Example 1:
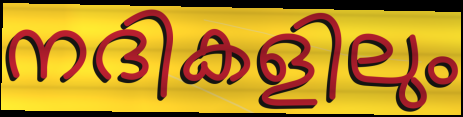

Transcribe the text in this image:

നദികളിലും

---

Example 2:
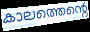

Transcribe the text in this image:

കാലത്തെന്റെ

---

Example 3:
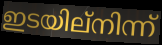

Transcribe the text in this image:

ഇടയില്നിന്ന്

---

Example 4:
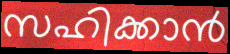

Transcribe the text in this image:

സഹിക്കാൻ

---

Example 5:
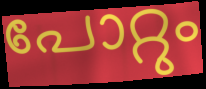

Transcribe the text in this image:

പോറ്റും